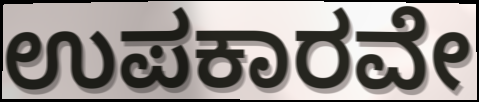
ಉಪಕಾರವೇ